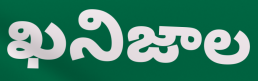
ఖనిజాల